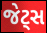
જેટ્સ